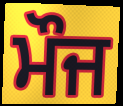
ਮੌਜ